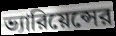
ভ্যারিয়েন্সের